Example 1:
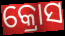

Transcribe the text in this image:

କ୍ରୋସ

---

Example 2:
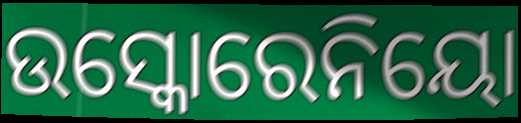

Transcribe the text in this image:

ଉସ୍କୋରେନିୟୋ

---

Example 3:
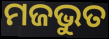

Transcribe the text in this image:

ମଜଭୁତ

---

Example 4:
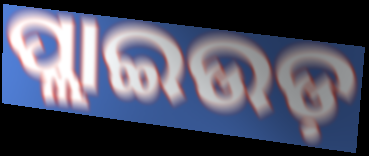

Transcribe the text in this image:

ପ୍ଲାଇଉଡ଼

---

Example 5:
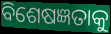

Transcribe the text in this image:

ବିଶେଷଜ୍ଞତାକୁ